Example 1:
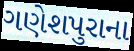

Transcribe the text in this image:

ગણેશપુરાના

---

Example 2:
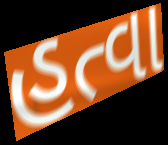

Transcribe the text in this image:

હત્વા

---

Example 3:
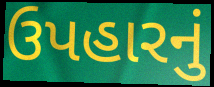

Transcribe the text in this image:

ઉપહારનું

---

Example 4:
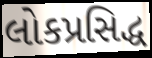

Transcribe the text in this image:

લોકપ્રસિદ્ધ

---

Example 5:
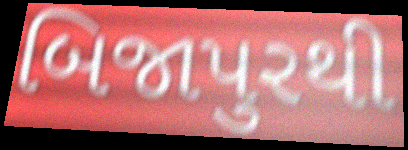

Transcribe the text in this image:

બિજાપુરથી